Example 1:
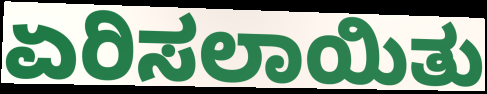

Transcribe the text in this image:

ಏರಿಸಲಾಯಿತು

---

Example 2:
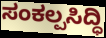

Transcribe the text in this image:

ಸಂಕಲ್ಪಸಿದ್ಧಿ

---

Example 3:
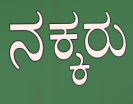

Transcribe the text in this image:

ನಕ್ಕರು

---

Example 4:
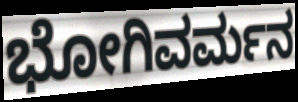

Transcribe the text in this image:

ಭೋಗಿವರ್ಮನ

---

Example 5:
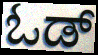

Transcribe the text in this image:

ಓಡ್